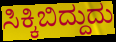
ಸಿಕ್ಕಿಬಿದ್ದುದು